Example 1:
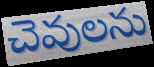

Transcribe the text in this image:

చెవులను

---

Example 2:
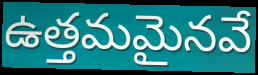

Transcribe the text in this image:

ఉత్తమమైనవే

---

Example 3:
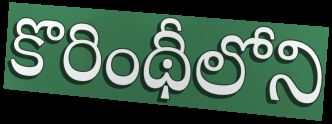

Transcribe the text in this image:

కొరింథీలోని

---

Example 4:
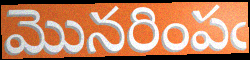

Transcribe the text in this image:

మొనరింపఁ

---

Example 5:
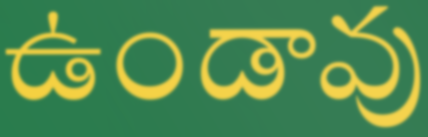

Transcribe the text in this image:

ఉండావు